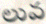
లువ